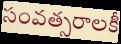
సంవత్సరాలకీ